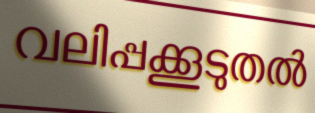
വലിപ്പക്കൂടുതൽ